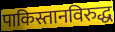
पाकिस्तानविरुद्ध